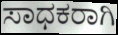
ಸಾಧಕರಾಗಿ